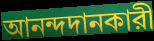
আনন্দদানকারী